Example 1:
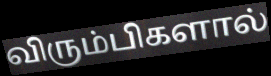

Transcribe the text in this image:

விரும்பிகளால்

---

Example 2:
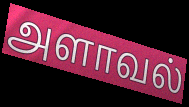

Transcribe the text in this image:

அளாவல்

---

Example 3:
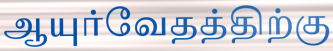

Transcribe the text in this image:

ஆயுர்வேதத்திற்கு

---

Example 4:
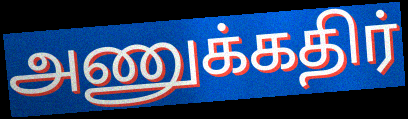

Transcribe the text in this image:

அணுக்கதிர்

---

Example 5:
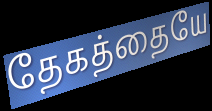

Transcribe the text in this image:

தேகத்தையே